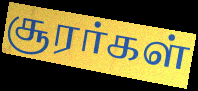
சூரர்கள்